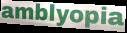
amblyopia